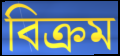
বিক্ৰম